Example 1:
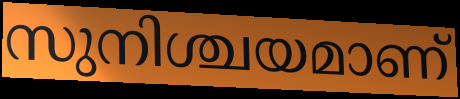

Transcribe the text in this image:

സുനിശ്ചയമാണ്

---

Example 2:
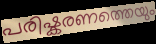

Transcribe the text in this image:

പരിഷ്കരണത്തെയും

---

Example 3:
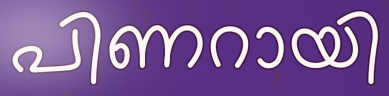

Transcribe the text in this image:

പിണറായി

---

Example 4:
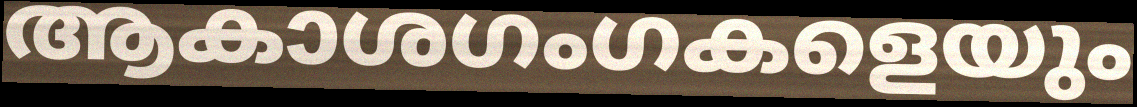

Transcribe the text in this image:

ആകാശഗംഗകളെയും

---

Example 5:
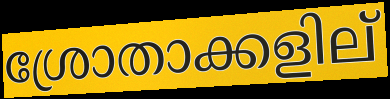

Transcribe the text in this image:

ശ്രോതാക്കളില്